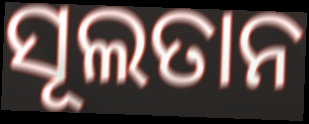
ସୂଲତାନ